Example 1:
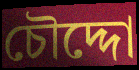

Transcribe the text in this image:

চৌদ্দো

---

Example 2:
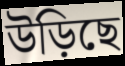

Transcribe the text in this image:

উড়িছে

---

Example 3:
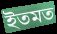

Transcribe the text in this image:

ইতমত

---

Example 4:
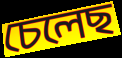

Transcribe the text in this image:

চেলেছ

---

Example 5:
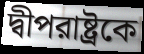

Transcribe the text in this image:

দ্বীপরাষ্ট্রকে